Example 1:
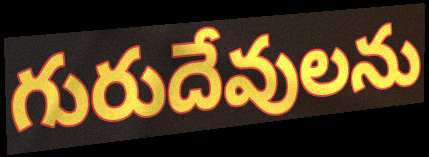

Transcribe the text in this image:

గురుదేవులను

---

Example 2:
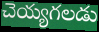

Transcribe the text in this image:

చెయ్యగలడు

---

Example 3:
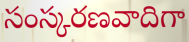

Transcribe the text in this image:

సంస్కరణవాదిగా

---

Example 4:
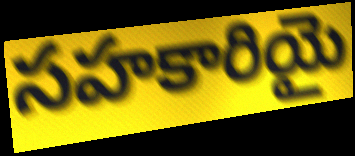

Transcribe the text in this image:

సహకారియై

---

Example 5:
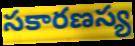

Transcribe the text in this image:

సకారణస్య